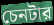
চেনটার